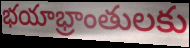
భయాభ్రాంతులకు